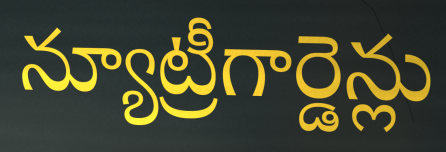
న్యూట్రీగార్డెన్లు